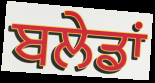
ਬਲੇਡਾਂ